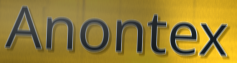
Anontex